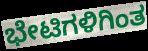
ಭೇಟಿಗಳಿಗಿಂತ